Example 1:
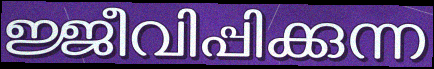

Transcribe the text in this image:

ജ്ജീവിപ്പിക്കുന്ന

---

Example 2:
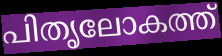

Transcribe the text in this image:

പിതൃലോകത്ത്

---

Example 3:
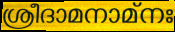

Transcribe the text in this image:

ശ്രീദാമനാമ്നഃ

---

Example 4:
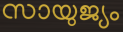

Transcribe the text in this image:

സായുജ്യം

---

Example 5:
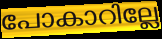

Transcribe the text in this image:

പോകാറില്ലേ